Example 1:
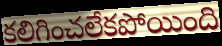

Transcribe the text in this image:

కలిగించలేకపోయింది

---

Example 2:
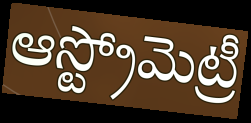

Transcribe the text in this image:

ఆస్ట్రోమెట్రీ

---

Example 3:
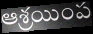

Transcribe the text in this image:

ఆశ్రయింప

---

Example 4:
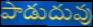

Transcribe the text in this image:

పాడుదువు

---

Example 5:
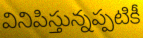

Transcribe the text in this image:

వినిపిస్తున్నప్పటికీ